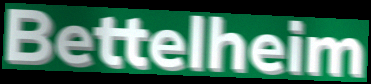
Bettelheim